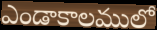
ఎండాకాలములో